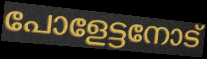
പോളേട്ടനോട്